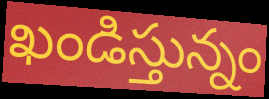
ఖండిస్తున్నం